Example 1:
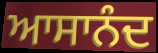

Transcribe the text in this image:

ਆਸਾਨੰਦ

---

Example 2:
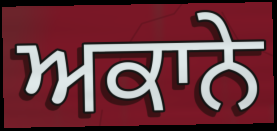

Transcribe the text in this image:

ਅਕਾਨੇ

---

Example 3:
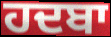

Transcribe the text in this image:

ਹਦਬਾ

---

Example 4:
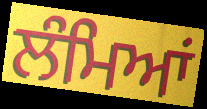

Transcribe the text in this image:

ਲੰਮਿਆਂ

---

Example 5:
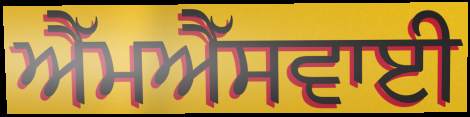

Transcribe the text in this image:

ਐੱਮਐੱਸਵਾਈ